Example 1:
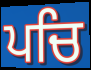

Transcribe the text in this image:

ਪਚਿ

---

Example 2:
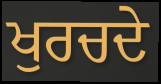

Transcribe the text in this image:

ਖੁਰਚਦੇ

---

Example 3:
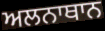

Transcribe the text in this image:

ਅਲਨਾਥਾਨ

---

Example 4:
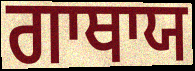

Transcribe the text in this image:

ਗਾਥਾਯ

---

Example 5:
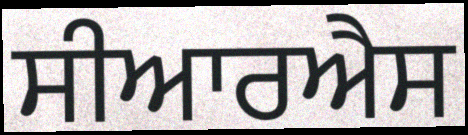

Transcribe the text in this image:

ਸੀਆਰਐਸ